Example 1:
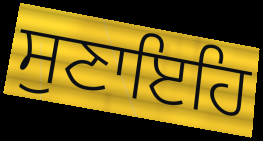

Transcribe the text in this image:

ਸੁਣਾਇਹਿ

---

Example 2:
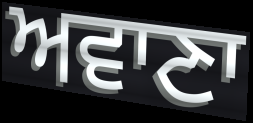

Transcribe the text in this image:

ਅਵਾਣਾ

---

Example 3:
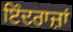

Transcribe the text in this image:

ਇੰਦਰਾਜ਼ਾਂ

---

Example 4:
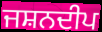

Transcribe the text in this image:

ਜਸ਼ਨਦੀਪ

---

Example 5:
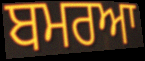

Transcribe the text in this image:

ਬਮਰਆ